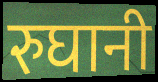
रुघानी